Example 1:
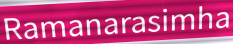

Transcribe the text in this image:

Ramanarasimha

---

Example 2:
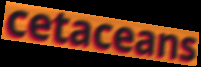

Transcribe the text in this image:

cetaceans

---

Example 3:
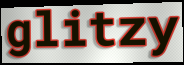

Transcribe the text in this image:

glitzy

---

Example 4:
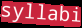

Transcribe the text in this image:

syllabi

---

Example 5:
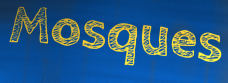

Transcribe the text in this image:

Mosques